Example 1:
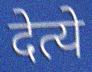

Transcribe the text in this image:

देत्ये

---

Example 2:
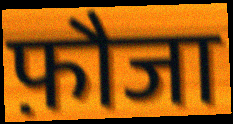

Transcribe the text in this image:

फ़ौजा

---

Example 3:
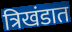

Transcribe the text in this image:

त्रिखंडात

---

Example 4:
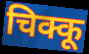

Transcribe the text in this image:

चिक्कू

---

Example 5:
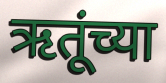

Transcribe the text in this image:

ऋतूंच्या